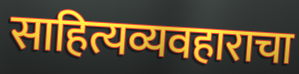
साहित्यव्यवहाराचा